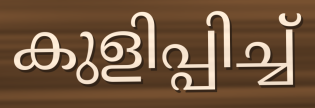
കുളിപ്പിച്ച്